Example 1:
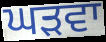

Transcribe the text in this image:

ਘੜਵਾ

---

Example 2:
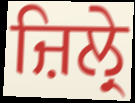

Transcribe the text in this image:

ਜ਼ਿਲ੍ਰੇ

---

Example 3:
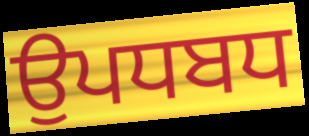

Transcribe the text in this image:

ਉਪਧਬਧ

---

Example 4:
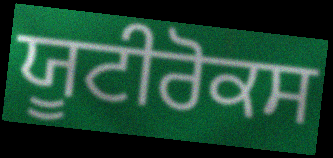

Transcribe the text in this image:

ਯੂਟੀਰੋਕਸ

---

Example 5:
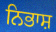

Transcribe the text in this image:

ਨਿਭਾਸ਼